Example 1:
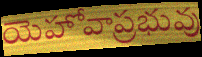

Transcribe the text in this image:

యెహోవాప్రభువు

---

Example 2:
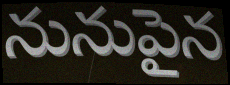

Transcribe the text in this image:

నునుపైన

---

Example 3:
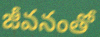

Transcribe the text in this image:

జీవనంతో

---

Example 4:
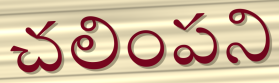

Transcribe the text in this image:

చలింపని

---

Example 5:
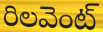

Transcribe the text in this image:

రిలవెంట్